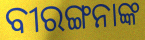
ବୀରଙ୍ଗନାଙ୍କ